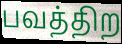
பவத்திற